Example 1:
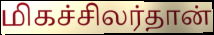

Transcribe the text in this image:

மிகச்சிலர்தான்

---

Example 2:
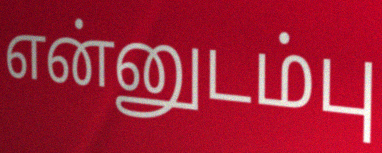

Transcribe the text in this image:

என்னுடம்பு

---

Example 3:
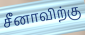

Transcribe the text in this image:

சீனாவிற்கு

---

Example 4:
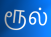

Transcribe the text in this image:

ரூல்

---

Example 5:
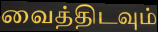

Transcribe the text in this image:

வைத்திடவும்